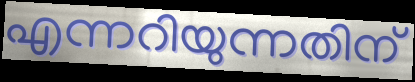
എന്നറിയുന്നതിന്